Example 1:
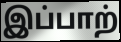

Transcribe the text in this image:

இப்பாற்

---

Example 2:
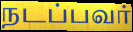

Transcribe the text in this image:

நடப்பவர்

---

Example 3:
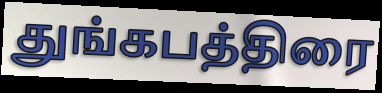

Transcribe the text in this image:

துங்கபத்திரை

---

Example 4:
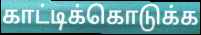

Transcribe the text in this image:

காட்டிக்கொடுக்க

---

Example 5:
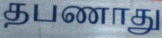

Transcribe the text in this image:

தபணாது